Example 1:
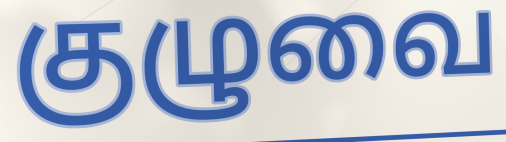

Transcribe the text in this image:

குழுவை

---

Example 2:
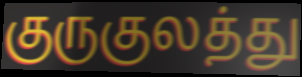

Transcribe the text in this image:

குருகுலத்து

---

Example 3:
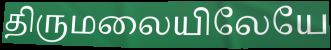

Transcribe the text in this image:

திருமலையிலேயே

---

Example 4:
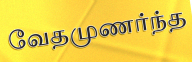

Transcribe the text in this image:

வேதமுணர்ந்த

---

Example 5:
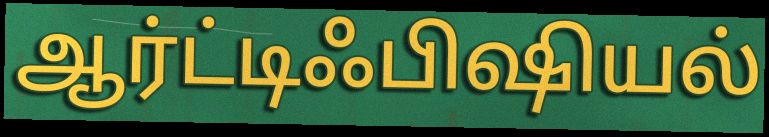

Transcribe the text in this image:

ஆர்ட்டிஃபிஷியல்